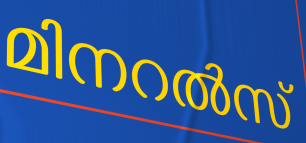
മിനറൽസ്